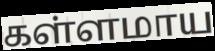
கள்ளமாய